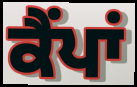
ਕੈੰਪਾਂ